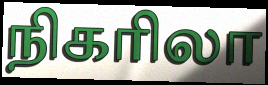
நிகரிலா